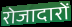
रोजादारों